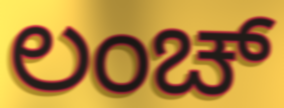
ಲಂಚ್